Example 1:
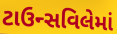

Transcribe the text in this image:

ટાઉન્સવિલેમાં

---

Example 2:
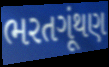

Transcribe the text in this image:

ભરતગૂંથણ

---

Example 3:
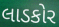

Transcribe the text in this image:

લાડકોર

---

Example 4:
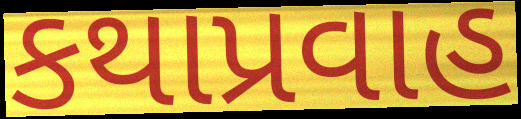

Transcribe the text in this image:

કથાપ્રવાહ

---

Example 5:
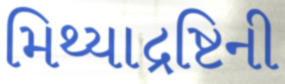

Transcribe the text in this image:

મિથ્યાદ્રષ્ટિની